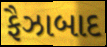
ફૈઝાબાદ